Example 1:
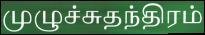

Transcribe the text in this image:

முழுச்சுதந்திரம்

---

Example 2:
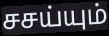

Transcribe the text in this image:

சசய்யும்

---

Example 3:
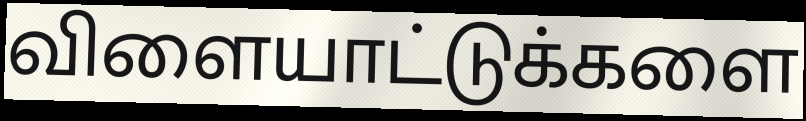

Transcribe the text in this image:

விளையாட்டுக்களை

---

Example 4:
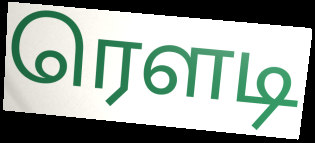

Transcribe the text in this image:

ரௌடி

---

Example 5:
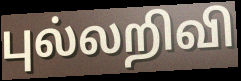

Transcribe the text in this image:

புல்லறிவி